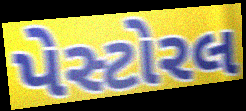
પેસ્ટોરલ